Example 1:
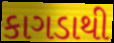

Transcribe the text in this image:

કાગડાથી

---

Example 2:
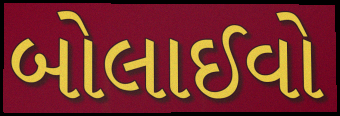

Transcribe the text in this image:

બોલાઈવો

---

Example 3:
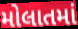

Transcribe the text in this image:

મોલાતમાં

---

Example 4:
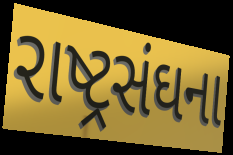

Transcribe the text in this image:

રાષ્ટ્રસંઘના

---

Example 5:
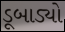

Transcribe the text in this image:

ડૂબાડ્યો